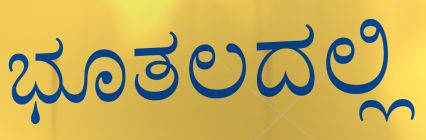
ಭೂತಲದಲ್ಲಿ